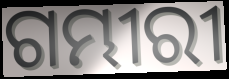
ଗମ୍ଭୀରୀ